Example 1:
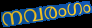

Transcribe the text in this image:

നവരംഗം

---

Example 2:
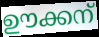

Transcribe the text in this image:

ഊക്കന്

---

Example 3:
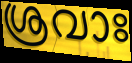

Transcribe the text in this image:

ശ്രവാഃ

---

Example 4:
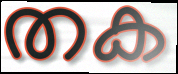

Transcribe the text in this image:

തക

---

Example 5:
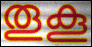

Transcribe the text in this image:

തൂകൂ